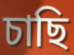
চাছি